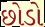
છોડો